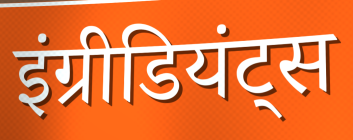
इंग्रीडियंट्स